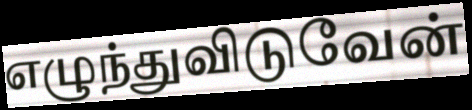
எழுந்துவிடுவேன்